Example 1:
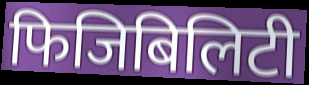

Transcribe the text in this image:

फिजिबिलिटी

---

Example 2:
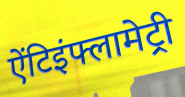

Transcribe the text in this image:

ऐंटिइंफ्लामेट्री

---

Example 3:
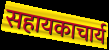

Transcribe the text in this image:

सहायकाचार्य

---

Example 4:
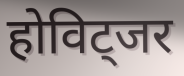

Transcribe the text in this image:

होविट्जर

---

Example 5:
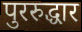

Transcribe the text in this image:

पुररुद्धार